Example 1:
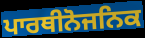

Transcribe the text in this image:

ਪਾਰਥੀਨੋਜਨਿਕ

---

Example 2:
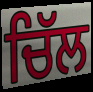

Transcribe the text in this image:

ਚਿੱਲ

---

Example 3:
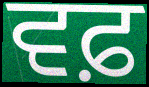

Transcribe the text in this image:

ਵਫ਼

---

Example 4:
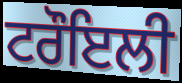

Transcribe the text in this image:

ਟਰੌਇਲੀ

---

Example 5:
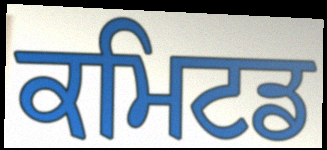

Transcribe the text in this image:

ਕਮਿਟਡ